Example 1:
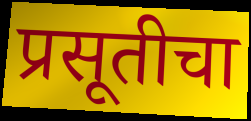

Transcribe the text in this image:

प्रसूतीचा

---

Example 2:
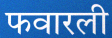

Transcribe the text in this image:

फवारली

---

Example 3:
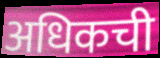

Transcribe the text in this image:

अधिकची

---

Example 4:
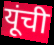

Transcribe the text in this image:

यूंची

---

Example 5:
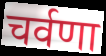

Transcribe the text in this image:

चर्वणा